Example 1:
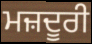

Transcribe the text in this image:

ਮਜ਼ਦੂਰੀ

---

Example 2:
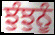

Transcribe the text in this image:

ਝੁੰਝੁਨੂੰ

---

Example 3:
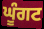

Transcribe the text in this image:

ਘੂੰਗਟ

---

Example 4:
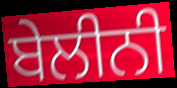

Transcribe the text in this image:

ਬੇਲੀਨੀ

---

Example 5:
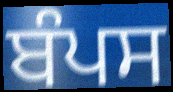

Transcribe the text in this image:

ਬੰਪਸ